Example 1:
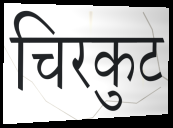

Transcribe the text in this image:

चिरकुट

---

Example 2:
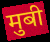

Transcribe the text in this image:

मुबी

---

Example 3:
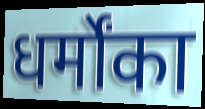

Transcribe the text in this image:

धर्मोंका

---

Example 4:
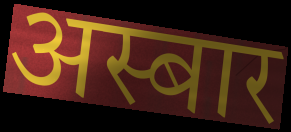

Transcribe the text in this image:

अस्बार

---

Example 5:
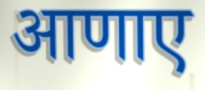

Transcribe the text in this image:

आणाए